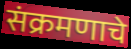
संक्रमणाचे